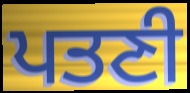
ਪਤਣੀ